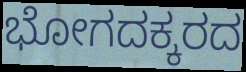
ಭೋಗದಕ್ಕರದ